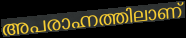
അപരാഹ്നത്തിലാണ്